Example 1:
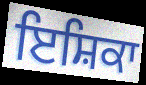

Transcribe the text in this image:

ਇਸ਼ਿਕਾ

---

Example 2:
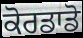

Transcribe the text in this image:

ਕੋਰਡਾਡੋ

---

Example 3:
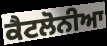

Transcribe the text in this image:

ਕੈਟਲੋਨੀਆ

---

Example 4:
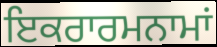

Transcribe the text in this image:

ਇਕਰਾਰਮਨਾਮਾਂ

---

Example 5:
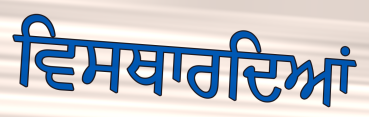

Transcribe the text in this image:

ਵਿਸਥਾਰਦਿਆਂ